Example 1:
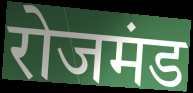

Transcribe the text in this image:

रोजमंड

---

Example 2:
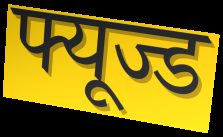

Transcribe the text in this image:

फ्यूज्ड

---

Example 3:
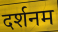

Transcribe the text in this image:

दर्शनम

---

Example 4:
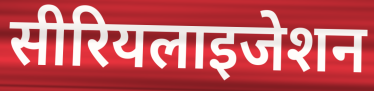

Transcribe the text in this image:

सीरियलाइजेशन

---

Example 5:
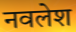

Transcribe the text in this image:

नवलेश